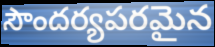
సౌందర్యపరమైన